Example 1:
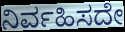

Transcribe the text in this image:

ನಿರ್ವಹಿಸದೇ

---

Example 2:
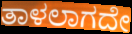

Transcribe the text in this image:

ತಾಳಲಾಗದೇ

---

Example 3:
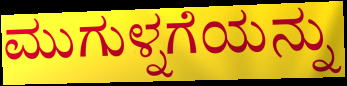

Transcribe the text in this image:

ಮುಗುಳ್ನಗೆಯನ್ನು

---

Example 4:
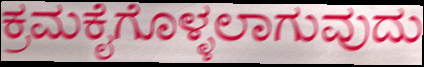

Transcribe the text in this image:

ಕ್ರಮಕೈಗೊಳ್ಳಲಾಗುವುದು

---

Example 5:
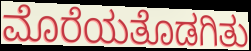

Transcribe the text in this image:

ಮೊರೆಯತೊಡಗಿತು